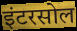
इंटरसोल